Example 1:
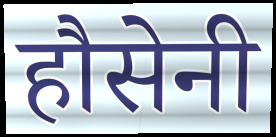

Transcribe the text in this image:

हौसेनी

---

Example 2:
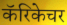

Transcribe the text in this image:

कॅरिकेचर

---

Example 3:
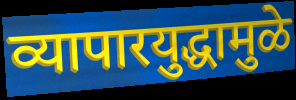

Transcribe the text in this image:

व्यापारयुद्धामुळे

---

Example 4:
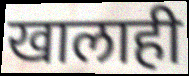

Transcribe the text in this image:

खालाही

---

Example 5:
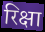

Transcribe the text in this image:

रिक्षा